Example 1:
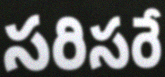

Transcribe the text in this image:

సరిసరే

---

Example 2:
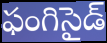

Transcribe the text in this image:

ఫంగిసైడ్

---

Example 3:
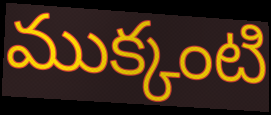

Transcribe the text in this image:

ముక్కంటి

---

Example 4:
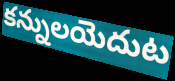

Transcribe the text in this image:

కన్నులయెదుట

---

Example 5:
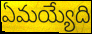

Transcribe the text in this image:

ఏమయ్యేది